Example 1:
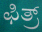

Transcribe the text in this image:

ಫಿತ್ರ್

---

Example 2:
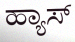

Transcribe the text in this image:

ಹ್ಯಾಸ್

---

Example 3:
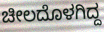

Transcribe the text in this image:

ಚೀಲದೊಳಗಿದ್ದ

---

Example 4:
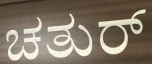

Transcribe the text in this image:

ಚತುರ್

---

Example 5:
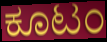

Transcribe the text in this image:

ಕೂಟಂ